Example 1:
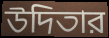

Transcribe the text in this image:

উদিতার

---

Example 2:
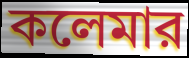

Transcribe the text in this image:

কলেমার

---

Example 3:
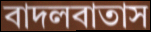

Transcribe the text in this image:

বাদলবাতাস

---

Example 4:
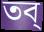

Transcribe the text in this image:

তব্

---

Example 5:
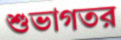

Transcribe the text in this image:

শুভাগতর